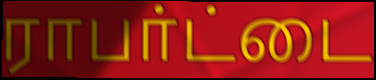
ராபர்ட்டை